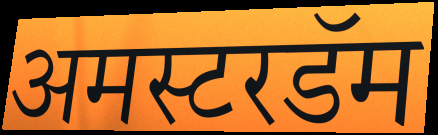
अमस्टरडॅम